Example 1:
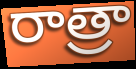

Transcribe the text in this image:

రాత్రా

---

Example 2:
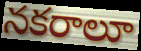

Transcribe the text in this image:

నకరాలూ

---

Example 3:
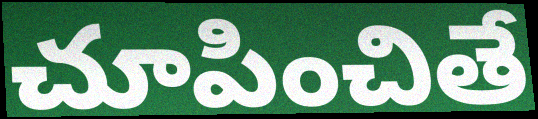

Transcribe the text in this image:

చూపించితే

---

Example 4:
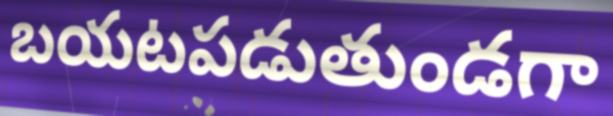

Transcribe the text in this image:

బయటపడుతుండగా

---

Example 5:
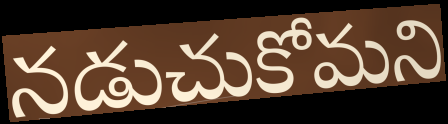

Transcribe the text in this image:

నడుచుకోమని